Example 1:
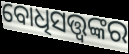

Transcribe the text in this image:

ବୋଧିସତ୍ତ୍ଵଙ୍କର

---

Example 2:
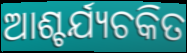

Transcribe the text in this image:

ଆଶ୍ଚର୍ଯ୍ୟଚକିତ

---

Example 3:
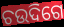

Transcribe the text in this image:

ଚଉଦିଗେ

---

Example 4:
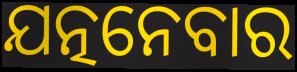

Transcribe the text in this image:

ଯତ୍ନନେବାର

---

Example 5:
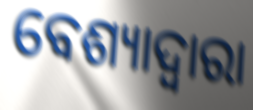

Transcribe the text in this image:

ବେଶ୍ୟାଦ୍ୱାରା